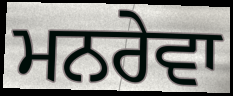
ਮਨਰੇਵਾ